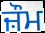
ਜ਼ੌਮ